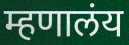
म्हणालंय